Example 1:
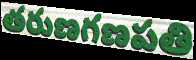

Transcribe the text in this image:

తరుణగణపతి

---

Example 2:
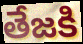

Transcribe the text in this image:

తేజకి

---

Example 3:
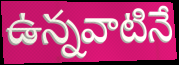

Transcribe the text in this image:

ఉన్నవాటినే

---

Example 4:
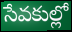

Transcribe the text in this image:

సేవకుల్లో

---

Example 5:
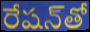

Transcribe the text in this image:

రేషన్‌తో